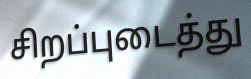
சிறப்புடைத்து